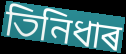
তিনিধাৰ